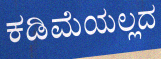
ಕಡಿಮೆಯಲ್ಲದ